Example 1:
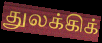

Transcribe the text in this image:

துலக்கிக்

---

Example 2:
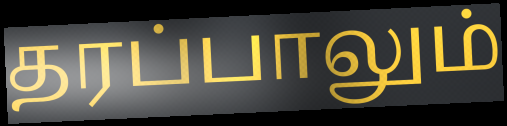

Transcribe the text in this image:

தரப்பாலும்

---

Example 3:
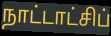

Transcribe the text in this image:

நாட்டாட்சிப்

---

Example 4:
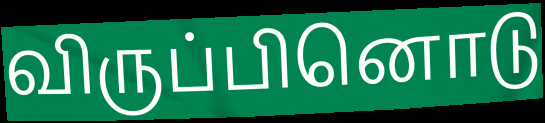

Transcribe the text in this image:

விருப்பினொடு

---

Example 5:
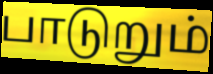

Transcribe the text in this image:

பாடுறும்